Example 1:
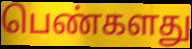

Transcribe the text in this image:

பெண்களது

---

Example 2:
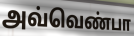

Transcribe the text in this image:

அவ்வெண்பா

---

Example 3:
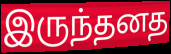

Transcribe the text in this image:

இருந்தனத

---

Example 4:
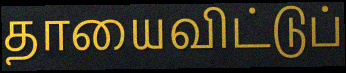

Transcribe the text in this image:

தாயைவிட்டுப்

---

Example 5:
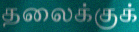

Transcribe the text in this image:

தலைக்குக்